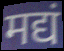
मद्यं